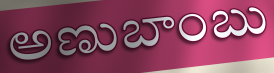
అణుబాంబు